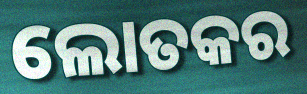
ଲୋତକର